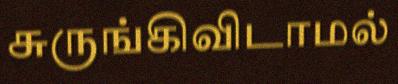
சுருங்கிவிடாமல்